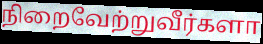
நிறைவேற்றுவீர்களா